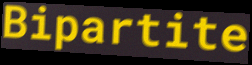
Bipartite